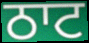
ਠਾਟ